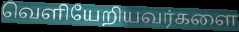
வெளியேறியவர்களை